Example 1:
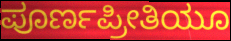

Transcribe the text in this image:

ಪೂರ್ಣಪ್ರೀತಿಯೂ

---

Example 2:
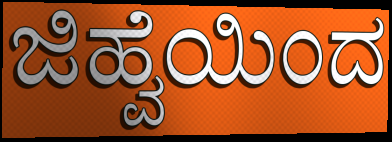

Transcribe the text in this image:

ಜಿಹ್ವೆಯಿಂದ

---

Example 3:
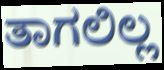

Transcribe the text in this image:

ತಾಗಲಿಲ್ಲ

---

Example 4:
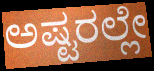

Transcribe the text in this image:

ಅಷ್ಟರಲ್ಲೇ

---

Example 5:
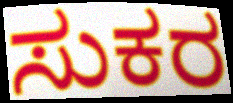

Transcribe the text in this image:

ಸುಕರ